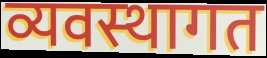
व्यवस्थागत